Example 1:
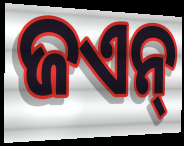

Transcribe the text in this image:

ଜଏନ୍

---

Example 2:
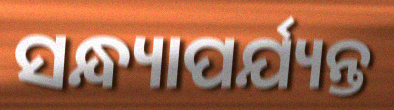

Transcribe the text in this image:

ସନ୍ଧ୍ୟାପର୍ଯ୍ୟନ୍ତ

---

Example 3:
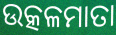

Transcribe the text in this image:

ଉତ୍କଳମାତା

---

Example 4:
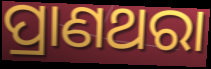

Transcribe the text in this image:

ପ୍ରାଣଥରା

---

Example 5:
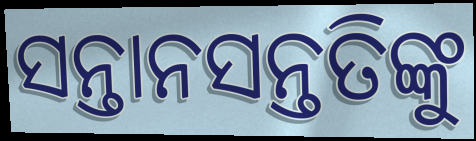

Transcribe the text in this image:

ସନ୍ତାନସନ୍ତତିଙ୍କୁ